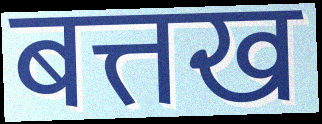
बत्तख